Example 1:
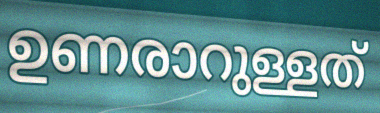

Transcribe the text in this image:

ഉണരാറുള്ളത്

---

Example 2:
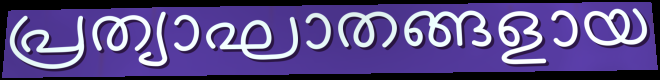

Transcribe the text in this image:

പ്രത്യാഘാതങ്ങളായ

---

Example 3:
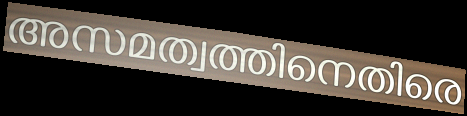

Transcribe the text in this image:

അസമത്വത്തിനെതിരെ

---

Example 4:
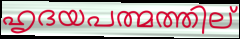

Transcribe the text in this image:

ഹൃദയപത്മത്തില്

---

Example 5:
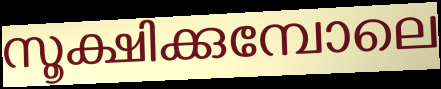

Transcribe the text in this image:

സൂക്ഷിക്കുമ്പോലെ